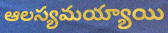
ఆలస్యమయ్యాయి